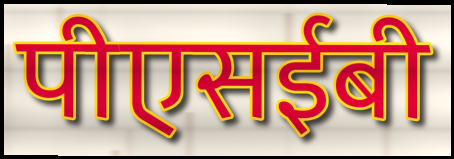
पीएसईबी